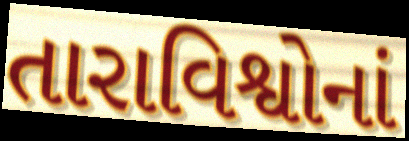
તારાવિશ્વોનાં